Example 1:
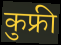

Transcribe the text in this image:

कुफ्री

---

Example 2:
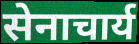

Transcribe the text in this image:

सेनाचार्य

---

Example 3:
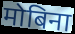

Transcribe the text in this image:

मोबिना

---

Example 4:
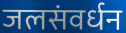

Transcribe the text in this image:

जलसंवर्धन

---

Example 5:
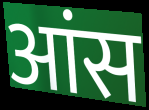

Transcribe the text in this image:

आंस